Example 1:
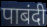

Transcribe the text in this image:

पाबंदी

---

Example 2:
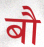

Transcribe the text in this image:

बौ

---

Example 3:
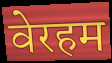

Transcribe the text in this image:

वेरहम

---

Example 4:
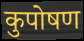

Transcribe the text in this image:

कुपोषण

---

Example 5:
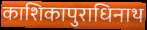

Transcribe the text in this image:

काशिकापुराधिनाथ